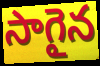
సాగైన